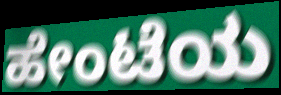
ಹೇಂಟೆಯ